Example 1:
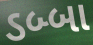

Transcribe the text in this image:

ડબ્બા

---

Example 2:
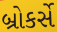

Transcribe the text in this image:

બ્રોકર્સે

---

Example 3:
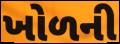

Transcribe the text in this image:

ખોળની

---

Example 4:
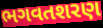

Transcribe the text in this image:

ભગવતશરણ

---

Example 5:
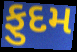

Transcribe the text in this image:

ફુદમ